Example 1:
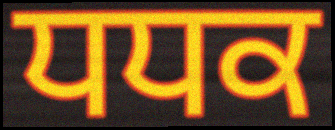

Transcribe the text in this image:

ਧਧਕ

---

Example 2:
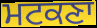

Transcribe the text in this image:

ਮਟਕਣਾ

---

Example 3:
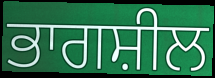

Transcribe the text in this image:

ਭਾਗਸ਼ੀਲ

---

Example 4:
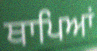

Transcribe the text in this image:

ਥਾਪਿਆਂ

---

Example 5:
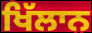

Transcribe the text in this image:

ਖਿੱਲਾਨ